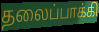
தலைப்பாக்கி